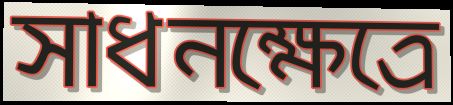
সাধনক্ষেত্রে